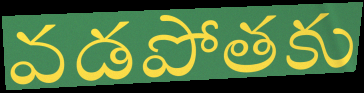
వడపోతకు